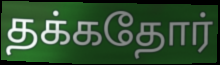
தக்கதோர்